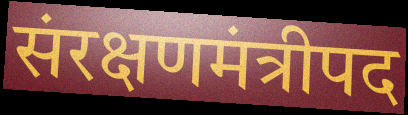
संरक्षणमंत्रीपद